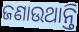
ଜଣାଉଥାନ୍ତି